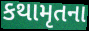
કથામૃતના